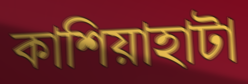
কাশিয়াহাটা